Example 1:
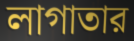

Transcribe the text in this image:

লাগাতার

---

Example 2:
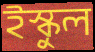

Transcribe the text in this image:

ইস্কুল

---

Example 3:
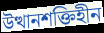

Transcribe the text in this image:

উত্থানশক্তিহীন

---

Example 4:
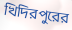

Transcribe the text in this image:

খিদিরপুরের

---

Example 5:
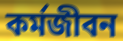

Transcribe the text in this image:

কর্মজীবন